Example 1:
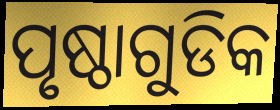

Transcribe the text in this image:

ପୃଷ୍ଠାଗୁଡିକ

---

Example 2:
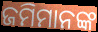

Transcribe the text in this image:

ଜମିମାନଙ୍କ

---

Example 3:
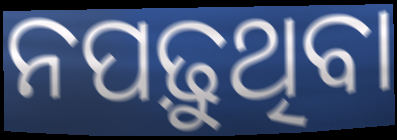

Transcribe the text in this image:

ନପଢ଼ୁଥିବା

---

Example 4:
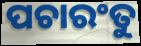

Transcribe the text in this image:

ପଚାରଂତୁ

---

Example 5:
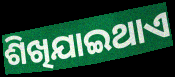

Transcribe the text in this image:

ଶିଖିଯାଇଥାଏ